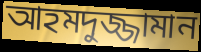
আহমদুজ্জামান